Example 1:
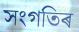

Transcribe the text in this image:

সংগতিৰ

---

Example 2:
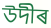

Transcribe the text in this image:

উদীৰ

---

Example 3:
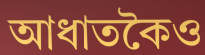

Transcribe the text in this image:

আধাতকৈও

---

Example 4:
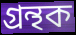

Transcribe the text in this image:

গ্ৰন্থক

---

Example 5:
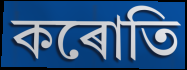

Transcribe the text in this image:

কৰোতি